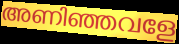
അണിഞ്ഞവളേ